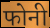
फोनी